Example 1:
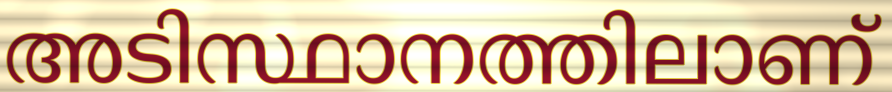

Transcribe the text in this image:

അടിസ്ഥാനത്തിലാണ്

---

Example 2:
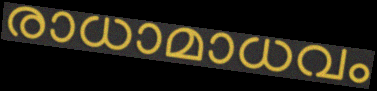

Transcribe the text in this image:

രാധാമാധവം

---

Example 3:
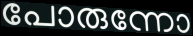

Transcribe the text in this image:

പോരുന്നോ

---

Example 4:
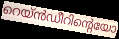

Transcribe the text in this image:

റെയ്ൻഡീറിന്റെയോ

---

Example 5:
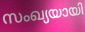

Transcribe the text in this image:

സംഖ്യയായി